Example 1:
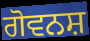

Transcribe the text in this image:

ਗੋਵਨਸ਼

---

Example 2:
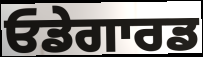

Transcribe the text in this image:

ਓਡੇਗਾਰਡ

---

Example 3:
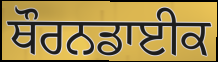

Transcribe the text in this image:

ਥੌਰਨਡਾਈਕ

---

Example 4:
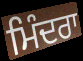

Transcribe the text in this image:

ਮਿੰਦਰਾ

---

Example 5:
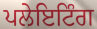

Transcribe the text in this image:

ਪਲੇਇਟਿੰਗ